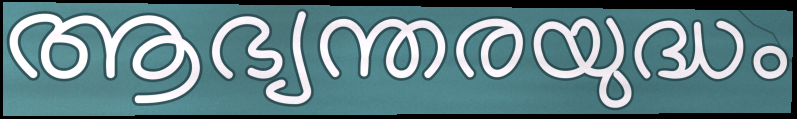
ആഭ്യന്തരയുദ്ധം